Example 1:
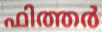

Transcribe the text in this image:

ഫിത്തർ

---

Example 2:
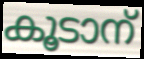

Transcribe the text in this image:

കൂടാന്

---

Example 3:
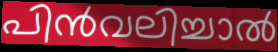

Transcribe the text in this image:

പിൻവലിച്ചാൽ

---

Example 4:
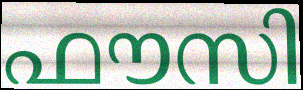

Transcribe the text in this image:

ഫൗസി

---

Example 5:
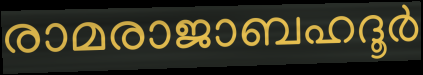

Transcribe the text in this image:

രാമരാജാബഹദൂർ